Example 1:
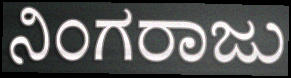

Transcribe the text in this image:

ನಿಂಗರಾಜು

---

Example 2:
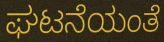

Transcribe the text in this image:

ಘಟನೆಯಂತೆ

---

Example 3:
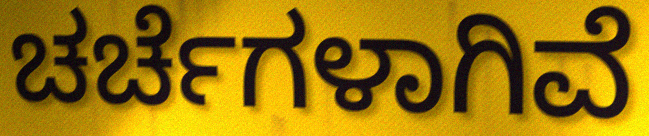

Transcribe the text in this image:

ಚರ್ಚೆಗಳಾಗಿವೆ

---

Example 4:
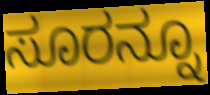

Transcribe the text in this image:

ಸೂರನ್ನೂ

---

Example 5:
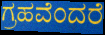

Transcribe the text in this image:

ಗ್ರಹವೆಂದರೆ